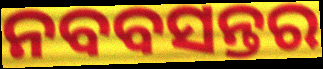
ନବବସନ୍ତର